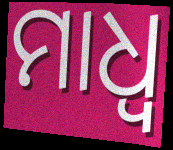
ମାଧ୍ଵ